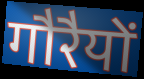
गौरैयों